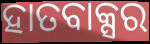
ହାତବାକ୍ସର